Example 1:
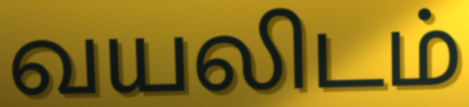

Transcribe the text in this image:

வயலிடம்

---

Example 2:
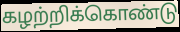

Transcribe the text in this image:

கழற்றிக்கொண்டு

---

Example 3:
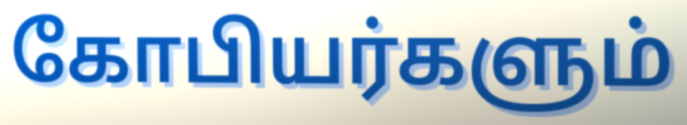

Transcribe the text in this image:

கோபியர்களும்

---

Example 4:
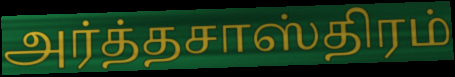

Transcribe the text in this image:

அர்த்தசாஸ்திரம்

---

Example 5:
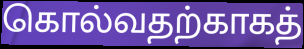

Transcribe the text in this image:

கொல்வதற்காகத்